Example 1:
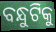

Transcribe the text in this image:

ବନ୍ଧୁଟିକୁ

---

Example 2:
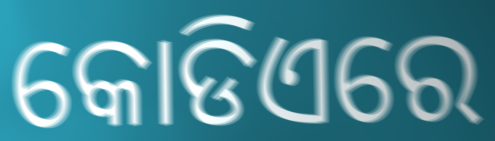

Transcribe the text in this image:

କୋଡିଏରେ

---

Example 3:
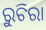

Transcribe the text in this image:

ରୁଚିରା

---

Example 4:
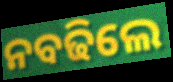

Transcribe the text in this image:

ନବଢିଲେ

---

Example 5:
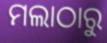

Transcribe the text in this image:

ମଲାଠାରୁ